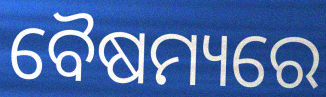
ବୈଷମ୍ୟରେ